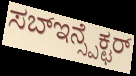
ಸಬ್ಇನ್ಸ್ಪೆಕ್ಟರ್